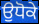
ਉਧੋਕੇ